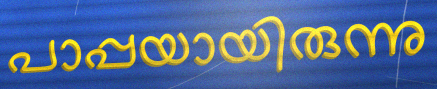
പാപ്പയായിരുന്നു